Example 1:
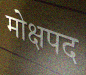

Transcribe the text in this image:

मोक्षपद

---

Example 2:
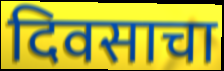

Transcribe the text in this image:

दिवसाचा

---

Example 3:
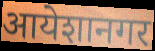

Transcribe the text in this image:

आयेशानगर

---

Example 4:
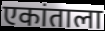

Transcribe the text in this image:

एकांताला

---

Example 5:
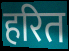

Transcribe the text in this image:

हरित